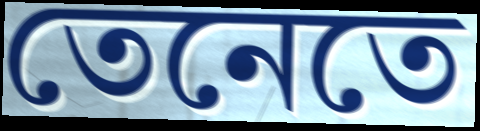
তেনেতে